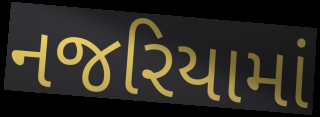
નજરિયામાં